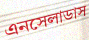
এনসেলাডাস